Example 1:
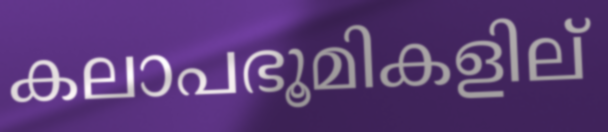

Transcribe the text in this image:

കലാപഭൂമികളില്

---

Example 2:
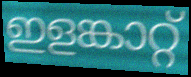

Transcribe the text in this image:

ഇളങ്കാറ്റ്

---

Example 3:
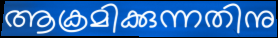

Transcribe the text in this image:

ആക്രമിക്കുന്നതിനു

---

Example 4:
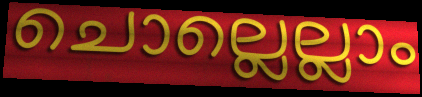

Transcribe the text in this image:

ചൊല്ലെല്ലാം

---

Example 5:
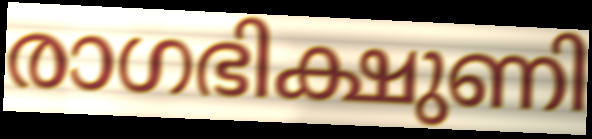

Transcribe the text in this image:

രാഗഭിക്ഷുണി